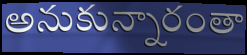
అనుకున్నారంతా